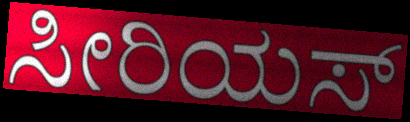
ಸೀರಿಯಸ್